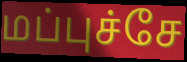
மப்புச்சே